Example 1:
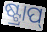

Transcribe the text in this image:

ଷ୍ଟ୍ରାପ୍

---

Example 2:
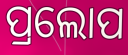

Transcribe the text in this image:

ପ୍ରଲୋପ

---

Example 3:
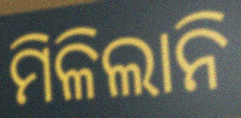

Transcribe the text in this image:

ମିଳିଲାନି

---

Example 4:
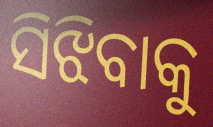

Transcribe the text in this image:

ସିଝିବାକୁ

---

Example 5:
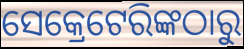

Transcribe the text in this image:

ସେକ୍ରେଟେରିଙ୍କଠାରୁ